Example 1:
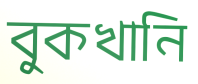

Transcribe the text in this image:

বুকখানি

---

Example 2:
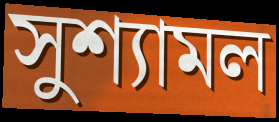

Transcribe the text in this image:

সুশ্যামল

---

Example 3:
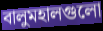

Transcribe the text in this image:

বালুমহালগুলো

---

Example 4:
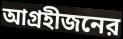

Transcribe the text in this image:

আগ্রহীজনের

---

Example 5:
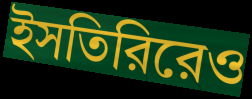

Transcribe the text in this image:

ইসতিরিরেও